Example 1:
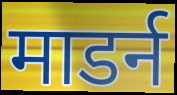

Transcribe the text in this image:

माडर्न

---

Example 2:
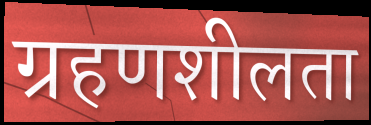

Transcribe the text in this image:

ग्रहणशीलता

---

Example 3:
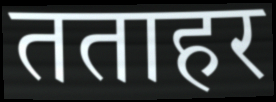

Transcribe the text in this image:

तताहर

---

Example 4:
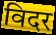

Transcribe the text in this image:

विदर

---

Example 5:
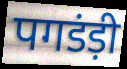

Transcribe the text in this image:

पगडंड़ी